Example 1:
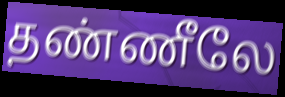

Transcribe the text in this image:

தண்ணீலே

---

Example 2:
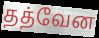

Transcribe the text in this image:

தத்வேன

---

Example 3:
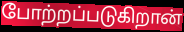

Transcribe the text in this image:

போற்றப்படுகிறான்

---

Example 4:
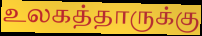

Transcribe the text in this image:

உலகத்தாருக்கு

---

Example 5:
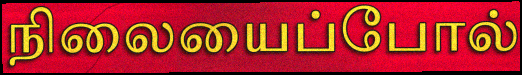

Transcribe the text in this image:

நிலையைப்போல்